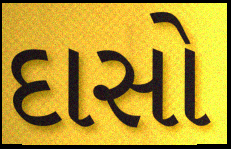
દાસો